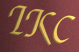
IKC